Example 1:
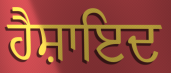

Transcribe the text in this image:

ਹੈਸ਼ਾਇਦ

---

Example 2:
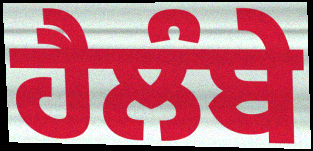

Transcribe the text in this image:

ਹੈਲੰਬੇ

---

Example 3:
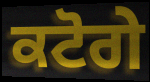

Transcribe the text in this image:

ਕਟੋਗੇ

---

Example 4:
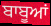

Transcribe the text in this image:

ਬਾਬੂਆਂ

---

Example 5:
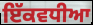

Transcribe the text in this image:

ਇੱਕਵਧੀਆ